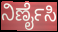
ನಿರ್ಣೈಸಿ